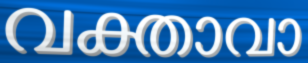
വക്താവാ